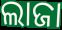
ଲାଜା